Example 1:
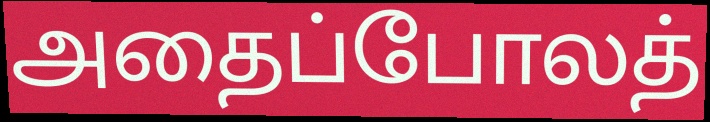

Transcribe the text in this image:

அதைப்போலத்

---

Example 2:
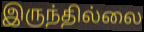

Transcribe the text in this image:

இருந்தில்லை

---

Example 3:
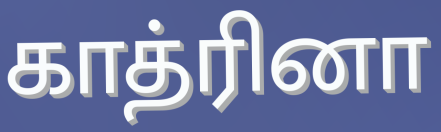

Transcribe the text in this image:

காத்ரினா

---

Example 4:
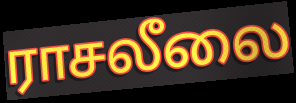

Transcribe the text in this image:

ராசலீலை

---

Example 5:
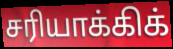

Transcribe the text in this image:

சரியாக்கிக்